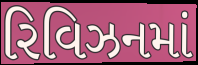
રિવિઝનમાં